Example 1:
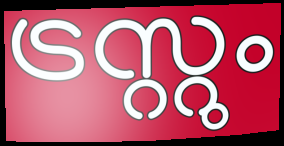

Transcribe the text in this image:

ട്രസ്റ്റും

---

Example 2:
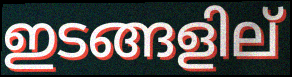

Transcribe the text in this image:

ഇടങ്ങളില്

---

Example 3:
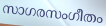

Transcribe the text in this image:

സാഗരസംഗീതം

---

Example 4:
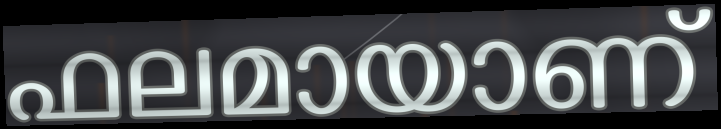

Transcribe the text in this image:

ഫലമായാണ്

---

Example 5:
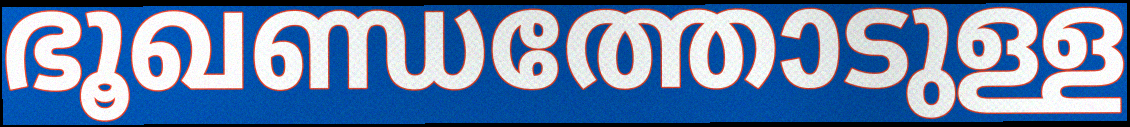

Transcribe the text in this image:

ഭൂഖണ്ഡത്തോടുള്ള